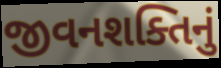
જીવનશક્તિનું